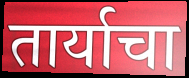
तार्याचा